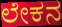
ಲೇಕನ